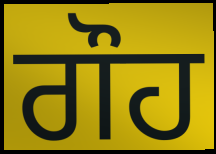
ਗੌਹ